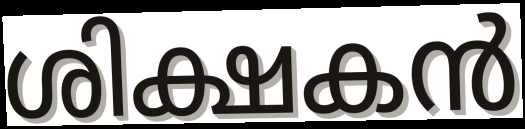
ശിക്ഷകൻ